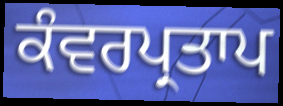
ਕੰਵਰਪ੍ਰਤਾਪ